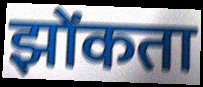
झोंकता